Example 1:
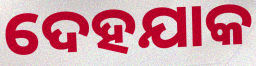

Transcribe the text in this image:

ଦେହଯାକ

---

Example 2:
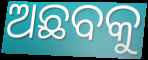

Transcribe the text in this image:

ଅଛବକୁ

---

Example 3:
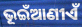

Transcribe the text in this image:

ଭୂଇଁଆଣୀଏଁ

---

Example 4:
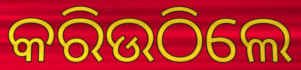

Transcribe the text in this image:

କରିଉଠିଲେ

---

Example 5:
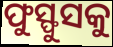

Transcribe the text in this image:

ଫୁସ୍ଫୁସକୁ